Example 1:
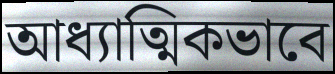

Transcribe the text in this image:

আধ্যাত্মিকভাবে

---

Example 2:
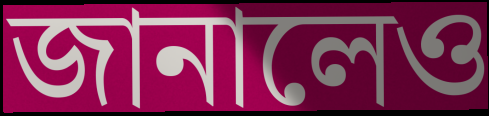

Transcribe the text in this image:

জানালেও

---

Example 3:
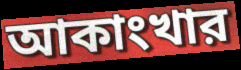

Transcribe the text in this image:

আকাংখার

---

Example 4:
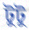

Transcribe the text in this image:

টুটু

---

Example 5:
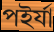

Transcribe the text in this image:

পইর্যা